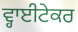
ਵ੍ਹਾਈਟੇਕਰ